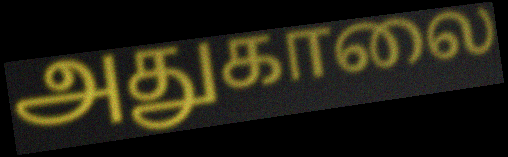
அதுகாலை